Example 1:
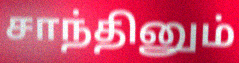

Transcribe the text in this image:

சாந்தினும்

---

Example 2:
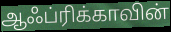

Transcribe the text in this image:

ஆஃப்ரிக்காவின்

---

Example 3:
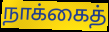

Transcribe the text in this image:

நாக்கைத்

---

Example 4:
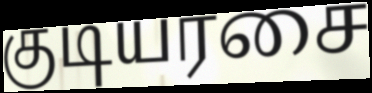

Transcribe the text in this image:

குடியரசை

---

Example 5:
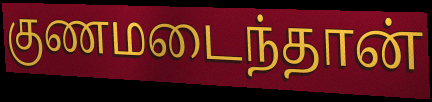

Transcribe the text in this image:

குணமடைந்தான்